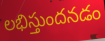
లభిస్తుందనడం